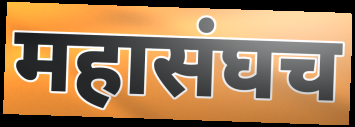
महासंघच